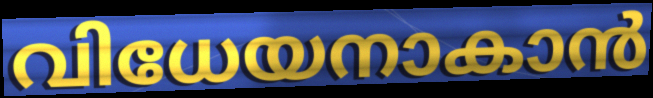
വിധേയനാകാൻ